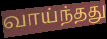
வாய்ந்தது